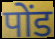
पोंड